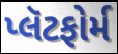
પ્લૅટફોર્મ